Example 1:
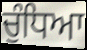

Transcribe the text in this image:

ਚੁੰਧਿਆ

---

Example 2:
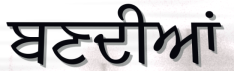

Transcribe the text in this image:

ਬਣਦੀਆਂ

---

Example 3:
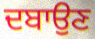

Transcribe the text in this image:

ਦਬਾਉਣ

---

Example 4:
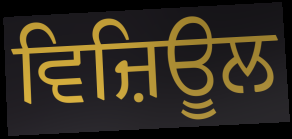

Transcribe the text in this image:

ਵਿਜ਼ਿਊਲ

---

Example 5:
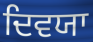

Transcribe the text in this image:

ਦਿਵਯਾ